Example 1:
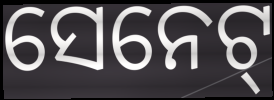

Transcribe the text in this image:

ସେନେଟ୍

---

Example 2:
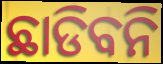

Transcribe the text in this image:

ଛାଡିବନି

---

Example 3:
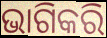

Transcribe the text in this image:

ଭାଗିକରି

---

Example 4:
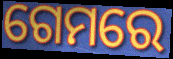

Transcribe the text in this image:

ଗେମରେ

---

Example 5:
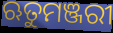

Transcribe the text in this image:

ଋତୁମଞ୍ଜରୀ